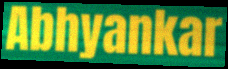
Abhyankar